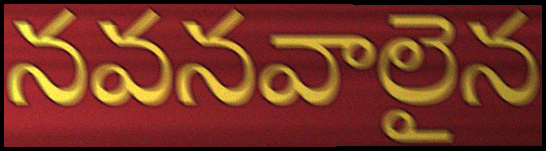
నవనవాలైన